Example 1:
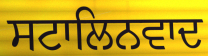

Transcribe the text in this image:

ਸਟਾਲਿਨਵਾਦ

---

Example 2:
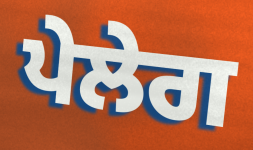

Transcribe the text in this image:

ਪੇਲੇਗ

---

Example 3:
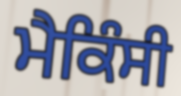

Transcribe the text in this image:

ਮੈਕਿੰਸੀ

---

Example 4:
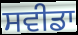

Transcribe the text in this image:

ਸਵੀਡਾ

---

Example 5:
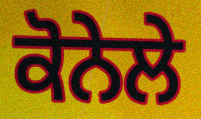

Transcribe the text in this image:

ਕੋਨੇਲੇ